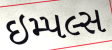
ઇમ્પલ્સ